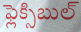
ఫ్లెక్సిబుల్